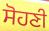
ਸੋਹਣੀ